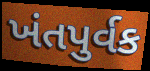
ખંતપુર્વક